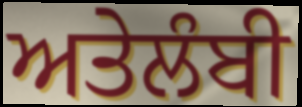
ਅਤੇਲੰਬੀ